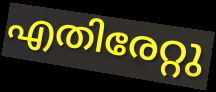
എതിരേറ്റു